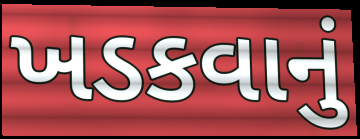
ખડકવાનું